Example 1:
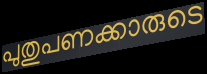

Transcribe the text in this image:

പുതുപണക്കാരുടെ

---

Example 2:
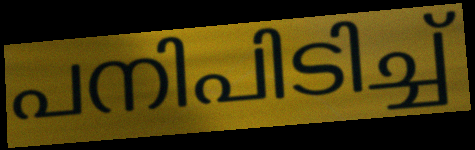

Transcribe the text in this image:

പനിപിടിച്ച്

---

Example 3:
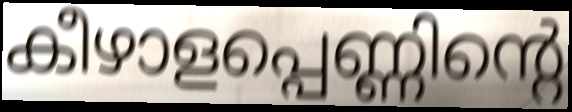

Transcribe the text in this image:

കീഴാളപ്പെണ്ണിന്റെ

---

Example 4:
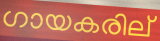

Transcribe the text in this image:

ഗായകരില്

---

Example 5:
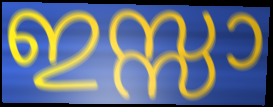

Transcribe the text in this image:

ഇസ്സാ